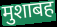
मुशाबह